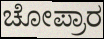
ಚೋಪ್ರಾರ